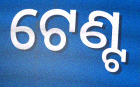
ଟେଣ୍ଟ